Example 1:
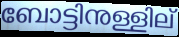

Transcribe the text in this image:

ബോട്ടിനുള്ളില്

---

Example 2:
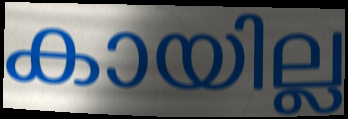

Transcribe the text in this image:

കായില്ല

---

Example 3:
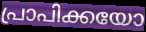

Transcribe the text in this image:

പ്രാപിക്കയോ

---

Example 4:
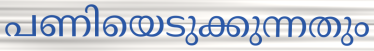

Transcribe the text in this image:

പണിയെടുക്കുന്നതും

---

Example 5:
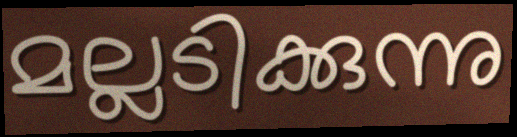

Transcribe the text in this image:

മല്ലടിക്കുന്നു